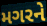
મગરને